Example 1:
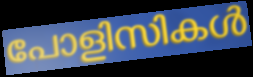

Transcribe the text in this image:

പോളിസികൾ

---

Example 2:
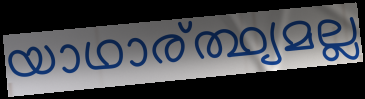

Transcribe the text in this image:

യാഥാര്ത്ഥ്യമല്ല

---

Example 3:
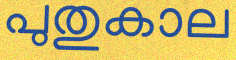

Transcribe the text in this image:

പുതുകാല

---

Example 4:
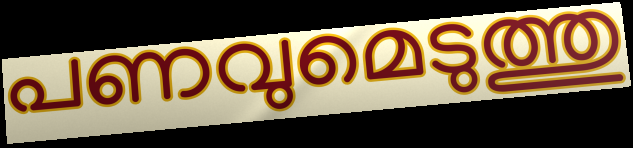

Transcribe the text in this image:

പണവുമെടുത്തു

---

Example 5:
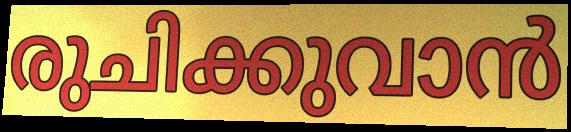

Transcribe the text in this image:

രുചിക്കുവാൻ